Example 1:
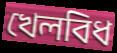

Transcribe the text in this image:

খেলবিধ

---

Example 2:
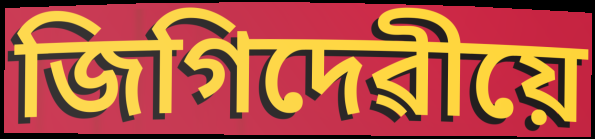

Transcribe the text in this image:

জিগিদেৱীয়ে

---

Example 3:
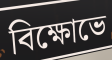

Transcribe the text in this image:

বিক্ষোভে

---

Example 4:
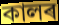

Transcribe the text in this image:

কালৰ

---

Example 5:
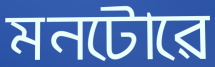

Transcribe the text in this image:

মনটোৱে